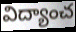
విద్యాంచ